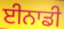
ਈਨਾਡੀ